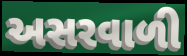
અસરવાળી